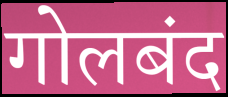
गोलबंद